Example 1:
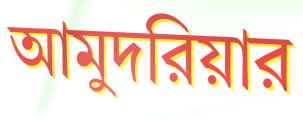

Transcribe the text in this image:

আমুদরিয়ার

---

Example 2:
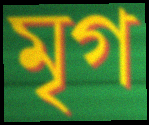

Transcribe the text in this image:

মৃগ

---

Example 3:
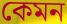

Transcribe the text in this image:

কেমন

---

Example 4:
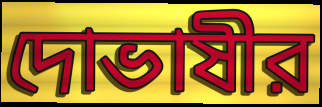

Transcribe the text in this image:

দোভাষীর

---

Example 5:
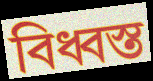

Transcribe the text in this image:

বিধ্বস্ত